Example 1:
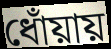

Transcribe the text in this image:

ধোঁয়ায়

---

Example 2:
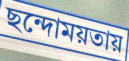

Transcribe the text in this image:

ছন্দোময়তায়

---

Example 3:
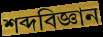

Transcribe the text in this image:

শব্দবিজ্ঞান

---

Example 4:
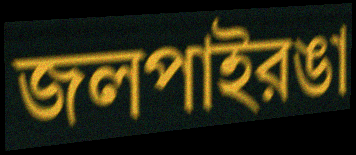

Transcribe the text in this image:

জলপাইরঙা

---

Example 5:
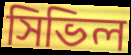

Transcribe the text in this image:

সিভিল